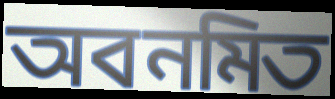
অবনমিত